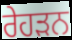
ਰੇਹੜਨ